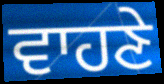
ਵਾਹਣੇ